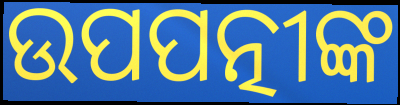
ଉପପତ୍ନୀଙ୍କ